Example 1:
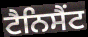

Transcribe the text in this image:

ਟੈਨਿਸੈਂਟ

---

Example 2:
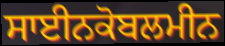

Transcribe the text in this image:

ਸਾਈਨਕੋਬਲਮੀਨ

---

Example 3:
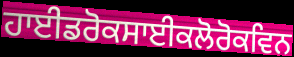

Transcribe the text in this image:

ਹਾਈਡਰੋਕਸਾਈਕਲੋਰੋਕਵਿਨ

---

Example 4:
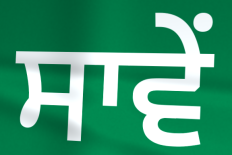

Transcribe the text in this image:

ਸਾਵੇਂ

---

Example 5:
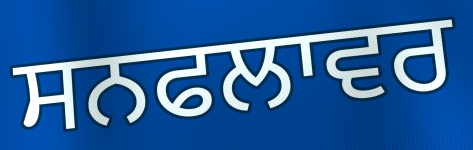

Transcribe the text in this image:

ਸਨਫਲਾਵਰ